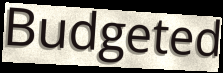
Budgeted